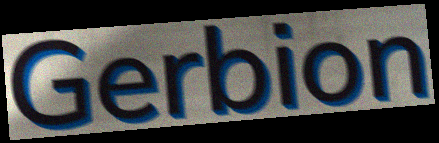
Gerbion